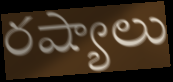
రష్యాలు